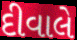
દીવાલે